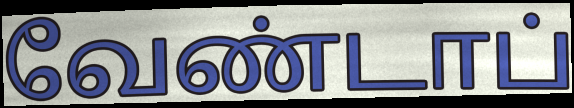
வேண்டாப்